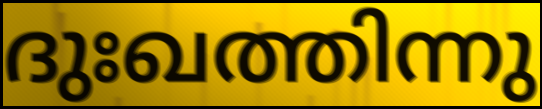
ദുഃഖത്തിന്നു